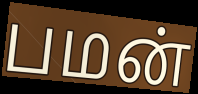
பமன்